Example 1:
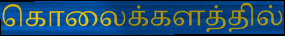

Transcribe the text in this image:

கொலைக்களத்தில்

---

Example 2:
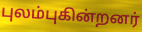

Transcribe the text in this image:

புலம்புகின்றனர்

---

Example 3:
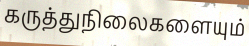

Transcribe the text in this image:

கருத்துநிலைகளையும்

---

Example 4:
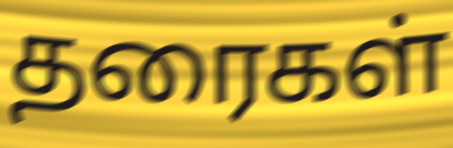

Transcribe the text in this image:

தரைகள்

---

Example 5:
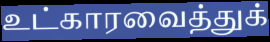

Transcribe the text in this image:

உட்காரவைத்துக்